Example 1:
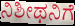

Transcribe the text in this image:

ನಿಶೀಥನಿಗೆ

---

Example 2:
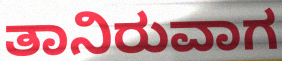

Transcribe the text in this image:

ತಾನಿರುವಾಗ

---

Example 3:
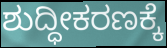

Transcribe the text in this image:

ಶುದ್ಧೀಕರಣಕ್ಕೆ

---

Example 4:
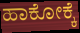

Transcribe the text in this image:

ಹಾಕೋಕ್ಕೆ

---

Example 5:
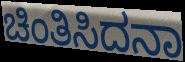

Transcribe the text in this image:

ಚಿಂತಿಸಿದನಾ